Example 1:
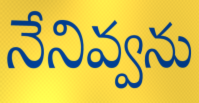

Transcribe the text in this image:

నేనివ్వను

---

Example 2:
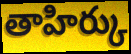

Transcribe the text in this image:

తాహిర్కు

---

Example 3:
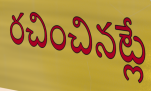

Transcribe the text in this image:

రచించినట్లే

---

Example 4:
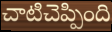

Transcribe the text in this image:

చాటిచెప్పింది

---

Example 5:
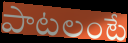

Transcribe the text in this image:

పాటలంటే